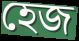
হেজ